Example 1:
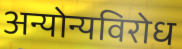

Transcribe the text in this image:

अन्योन्यविरोध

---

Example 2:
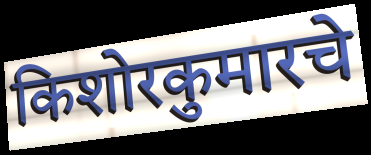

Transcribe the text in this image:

किशोरकुमारचे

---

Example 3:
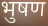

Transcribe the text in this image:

भुषण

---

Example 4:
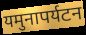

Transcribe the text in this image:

यमुनापर्यटन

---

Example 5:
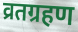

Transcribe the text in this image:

व्रतग्रहण